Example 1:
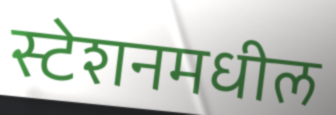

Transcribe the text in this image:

स्टेशनमधील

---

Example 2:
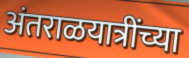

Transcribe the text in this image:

अंतराळयात्रींच्या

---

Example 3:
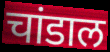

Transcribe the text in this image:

चांडाल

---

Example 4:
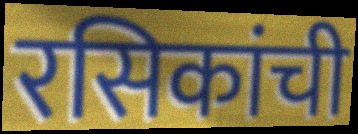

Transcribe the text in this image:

रसिकांची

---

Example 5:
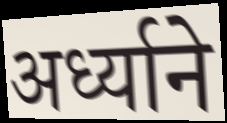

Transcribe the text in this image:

अर्ध्याने